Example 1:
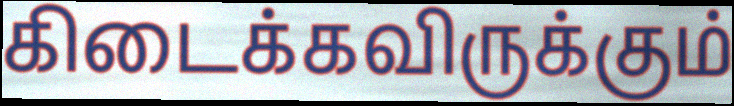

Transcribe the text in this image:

கிடைக்கவிருக்கும்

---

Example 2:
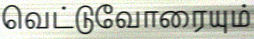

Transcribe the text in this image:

வெட்டுவோரையும்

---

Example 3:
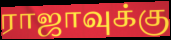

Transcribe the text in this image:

ராஜாவுக்கு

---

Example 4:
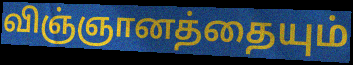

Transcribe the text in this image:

விஞ்ஞானத்தையும்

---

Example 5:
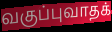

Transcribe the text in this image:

வகுப்புவாதக்